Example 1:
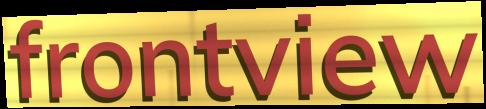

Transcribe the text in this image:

frontview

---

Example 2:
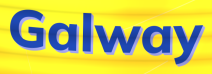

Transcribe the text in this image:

Galway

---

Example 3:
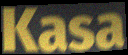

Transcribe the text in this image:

Kasa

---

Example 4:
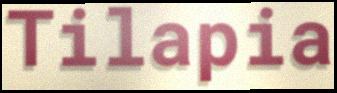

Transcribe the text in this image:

Tilapia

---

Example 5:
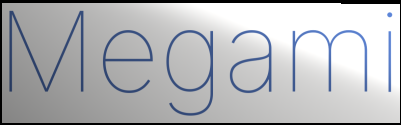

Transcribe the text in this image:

Megami